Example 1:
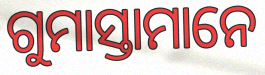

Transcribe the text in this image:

ଗୁମାସ୍ତାମାନେ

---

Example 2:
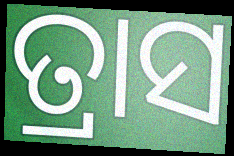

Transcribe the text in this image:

ତ୍ରାସ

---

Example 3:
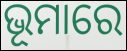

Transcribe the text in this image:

ଭୂମାରେ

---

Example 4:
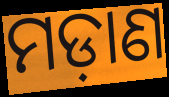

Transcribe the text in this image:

ମଡ଼ାଣ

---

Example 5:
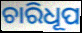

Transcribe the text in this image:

ଚାରିଧୂପ